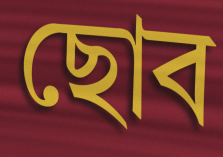
ছোব